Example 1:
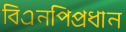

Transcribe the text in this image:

বিএনপিপ্রধান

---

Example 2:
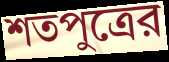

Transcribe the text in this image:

শতপুত্রের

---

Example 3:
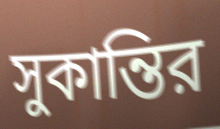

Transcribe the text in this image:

সুকান্তির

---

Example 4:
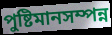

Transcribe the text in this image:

পুষ্টিমানসম্পন্ন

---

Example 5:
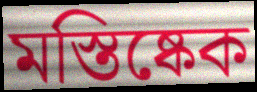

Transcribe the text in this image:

মস্তিষ্কেক